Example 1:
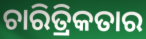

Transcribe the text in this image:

ଚାରିତ୍ରିକତାର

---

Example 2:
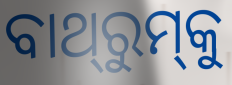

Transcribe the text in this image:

ବାଥ୍‌ରୁମ୍‌କୁ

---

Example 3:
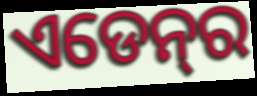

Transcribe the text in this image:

ଏଡେନ୍‍ର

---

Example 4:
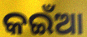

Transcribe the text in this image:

କଇଁଆ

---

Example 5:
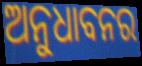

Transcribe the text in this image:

ଅନୁଧାବନର